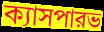
ক্যাসপারভ